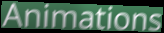
Animations